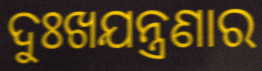
ଦୁଃଖଯନ୍ତ୍ରଣାର